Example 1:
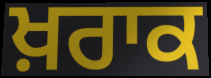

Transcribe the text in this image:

ਖ਼ਰਾਕ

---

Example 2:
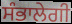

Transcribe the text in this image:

ਸੰਭਾਲੇਗੀ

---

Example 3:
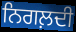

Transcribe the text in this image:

ਨਿਗਲ਼ਦੀ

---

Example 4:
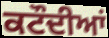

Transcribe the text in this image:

ਕਟੌਦੀਆਂ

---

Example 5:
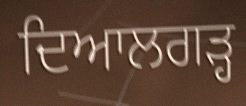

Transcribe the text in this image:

ਦਿਆਲਗੜ੍ਹ